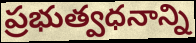
ప్రభుత్వధనాన్ని